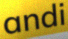
andi